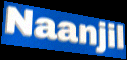
Naanjil